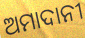
ଅମାଦାନୀ